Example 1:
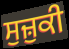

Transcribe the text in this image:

ਸੁਜ਼ੁਕੀ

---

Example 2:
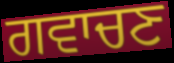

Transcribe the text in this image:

ਗਵਾਚਣ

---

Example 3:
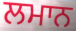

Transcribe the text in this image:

ਲਮਾਨ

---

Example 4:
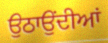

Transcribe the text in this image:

ਉਠਾਉਂਦੀਆਂ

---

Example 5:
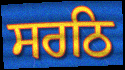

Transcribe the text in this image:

ਸਰਠਿ